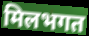
मिलभगत